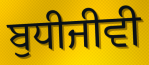
ਬੁਧੀਜੀਵੀ